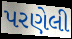
પરણેલી